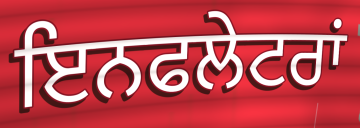
ਇਨਫਲੇਟਰਾਂ